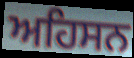
ਅਹਿਸਨ